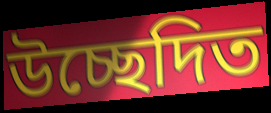
উচ্ছেদিত